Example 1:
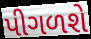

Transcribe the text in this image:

પીગળશે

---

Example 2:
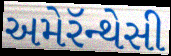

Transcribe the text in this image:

અમેરૅન્થેસી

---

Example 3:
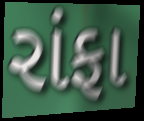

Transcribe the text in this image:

રાંફા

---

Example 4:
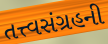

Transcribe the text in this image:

તત્ત્વસંગ્રહની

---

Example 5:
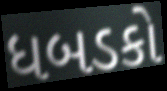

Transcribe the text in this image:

ધબડકો